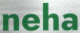
neha